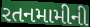
રતનમામીની